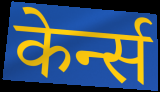
केर्न्स